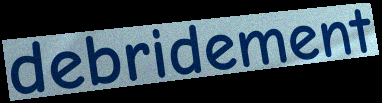
debridement